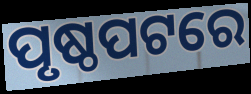
ପୃଷ୍ଠପଟରେ